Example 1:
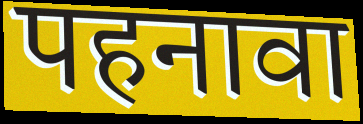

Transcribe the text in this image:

पहनावा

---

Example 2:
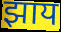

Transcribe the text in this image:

झाय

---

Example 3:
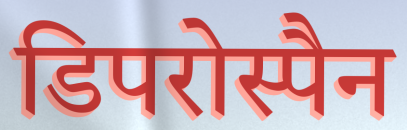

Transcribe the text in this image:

डिपरोस्पैन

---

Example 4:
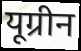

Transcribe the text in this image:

यूग्रीन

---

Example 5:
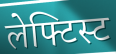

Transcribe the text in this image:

लेफ्टिस्ट